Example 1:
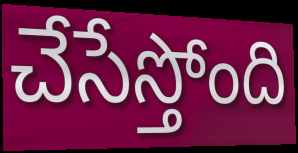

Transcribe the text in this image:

చేసేస్తోంది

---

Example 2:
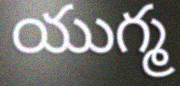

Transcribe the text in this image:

యుగ్మ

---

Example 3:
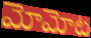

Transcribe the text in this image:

మోమోట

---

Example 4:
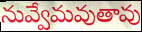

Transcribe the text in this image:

నువ్వేమవుతావు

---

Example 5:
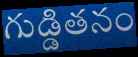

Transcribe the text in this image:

గుడ్డితనం